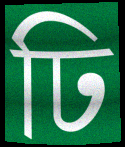
ঢি